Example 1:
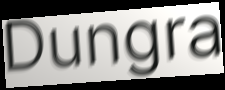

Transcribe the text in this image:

Dungra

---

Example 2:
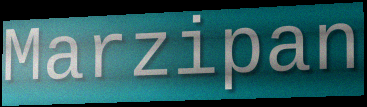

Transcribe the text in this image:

Marzipan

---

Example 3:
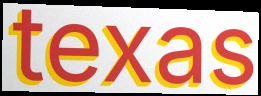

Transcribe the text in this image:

texas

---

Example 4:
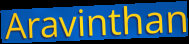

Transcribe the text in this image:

Aravinthan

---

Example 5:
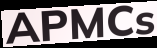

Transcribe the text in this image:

APMCs